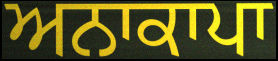
ਅਨਾਕਾਪਾ